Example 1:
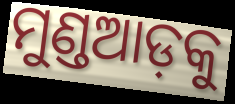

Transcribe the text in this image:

ମୁଣ୍ଡଆଡ଼କୁ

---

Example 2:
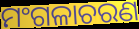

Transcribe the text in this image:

ମଂଗଳାଚରଣ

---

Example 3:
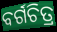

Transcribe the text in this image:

ବର୍ଗଚିତ୍ର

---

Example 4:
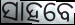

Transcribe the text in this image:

ସାହବେ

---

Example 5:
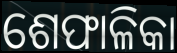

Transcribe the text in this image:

ଶେଫାଳିକା